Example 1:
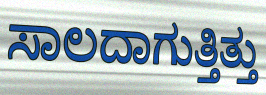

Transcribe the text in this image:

ಸಾಲದಾಗುತ್ತಿತ್ತು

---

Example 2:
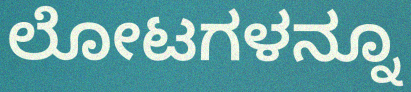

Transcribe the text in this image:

ಲೋಟಗಳನ್ನೂ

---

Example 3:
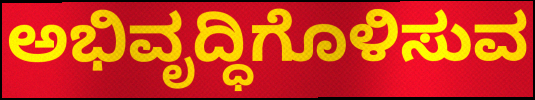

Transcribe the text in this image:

ಅಭಿವೃದ್ಧಿಗೊಳಿಸುವ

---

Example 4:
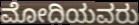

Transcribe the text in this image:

ಮೋದಿಯವರು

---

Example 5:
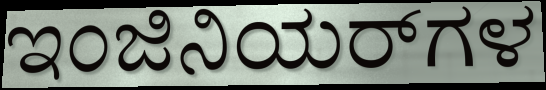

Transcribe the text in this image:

ಇಂಜಿನಿಯರ್‌ಗಳ